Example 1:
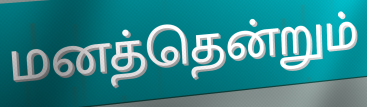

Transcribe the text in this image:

மனத்தென்றும்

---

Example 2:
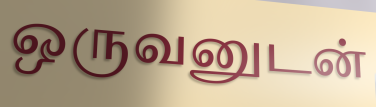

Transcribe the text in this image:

ஒருவனுடன்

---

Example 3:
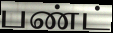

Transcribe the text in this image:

பண்ட்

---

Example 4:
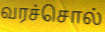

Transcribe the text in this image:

வரச்சொல்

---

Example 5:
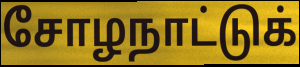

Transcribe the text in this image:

சோழநாட்டுக்